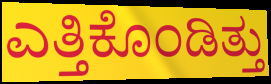
ಎತ್ತಿಕೊಂಡಿತ್ತು